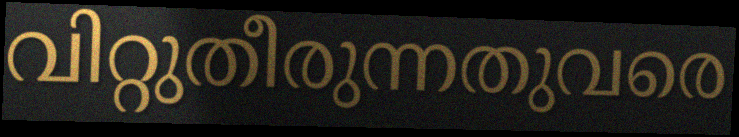
വിറ്റുതീരുന്നതുവരെ